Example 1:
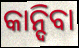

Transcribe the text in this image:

କାନ୍ଦିବା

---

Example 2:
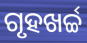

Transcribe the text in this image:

ଗୃହଖର୍ଚ୍ଚ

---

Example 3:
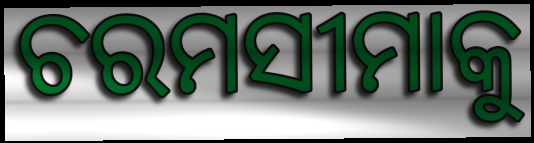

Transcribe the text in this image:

ଚରମସୀମାକୁ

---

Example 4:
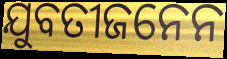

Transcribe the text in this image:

ଯୁବତୀଜନେନ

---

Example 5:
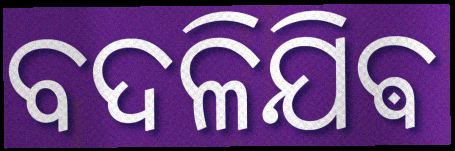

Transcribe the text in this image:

ବଦଳିଯିଵ